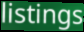
listings